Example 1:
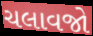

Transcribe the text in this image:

ચલાવજો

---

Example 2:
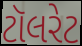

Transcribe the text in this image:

ટૉલરેટ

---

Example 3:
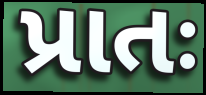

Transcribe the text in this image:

પ્રાતઃ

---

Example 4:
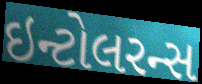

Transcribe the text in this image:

ઇન્ટોલરન્સ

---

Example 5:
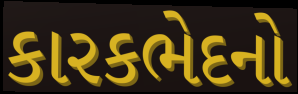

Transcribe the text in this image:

કારકભેદનો